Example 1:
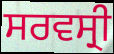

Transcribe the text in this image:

ਸਰਵਸ੍ਰੀ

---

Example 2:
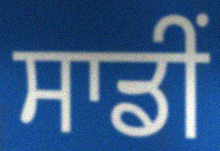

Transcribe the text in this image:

ਸਾਡੀਂ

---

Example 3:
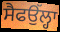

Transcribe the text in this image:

ਸੈਫਉੱਲ੍ਹਾ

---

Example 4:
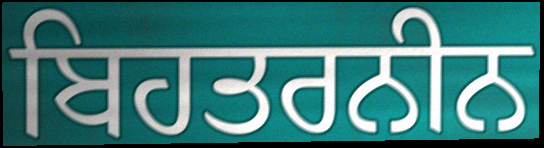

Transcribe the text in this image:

ਬਿਹਤਰਨੀਨ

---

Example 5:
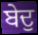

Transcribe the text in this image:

ਬੇਦੁ